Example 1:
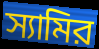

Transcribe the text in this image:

স্যামির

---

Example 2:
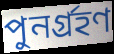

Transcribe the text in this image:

পুনর্গ্রহণ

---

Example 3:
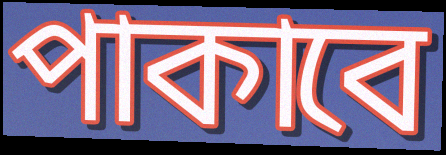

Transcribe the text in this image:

পাকাবে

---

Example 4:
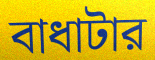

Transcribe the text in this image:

বাধাটার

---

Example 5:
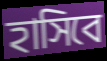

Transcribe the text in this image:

হাসিবে